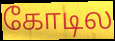
கோடில